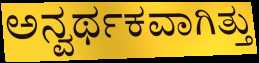
ಅನ್ವರ್ಥಕವಾಗಿತ್ತು